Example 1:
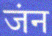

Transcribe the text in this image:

जंन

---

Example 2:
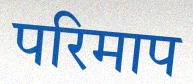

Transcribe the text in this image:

परिमाप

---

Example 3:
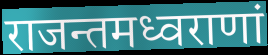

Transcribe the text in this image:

राजन्तमध्वराणां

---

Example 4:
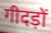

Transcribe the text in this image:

गीदड़ों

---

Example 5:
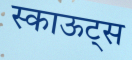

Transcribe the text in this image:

स्काऊट्स